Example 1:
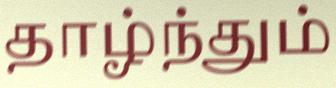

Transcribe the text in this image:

தாழ்ந்தும்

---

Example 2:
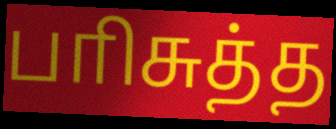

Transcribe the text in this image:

பரிசுத்த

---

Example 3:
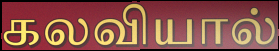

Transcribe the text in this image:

கலவியால்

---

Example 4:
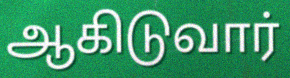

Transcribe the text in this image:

ஆகிடுவார்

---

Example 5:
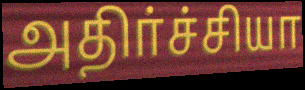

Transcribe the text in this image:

அதிர்ச்சியா